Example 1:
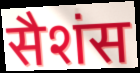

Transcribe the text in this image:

सैशंस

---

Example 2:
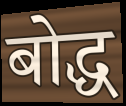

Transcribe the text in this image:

बोद्ध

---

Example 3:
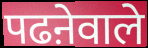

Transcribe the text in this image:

पढऩेवाले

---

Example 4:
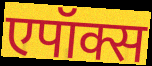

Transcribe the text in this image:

एपॉक्स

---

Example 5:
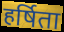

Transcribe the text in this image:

हर्षिता